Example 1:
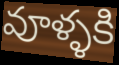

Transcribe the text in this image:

వూళ్ళకి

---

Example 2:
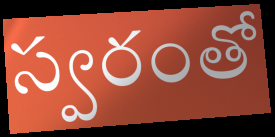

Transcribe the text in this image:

స్వరంతో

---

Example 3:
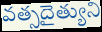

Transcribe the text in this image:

వత్సదైత్యుని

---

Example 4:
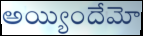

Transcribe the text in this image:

అయ్యిందేమో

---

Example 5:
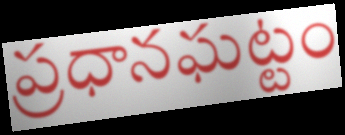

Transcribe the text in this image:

ప్రధానఘట్టం